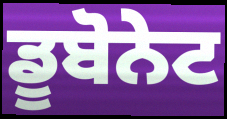
ਡੂਬੋਨੇਟ